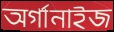
অর্গানাইজ